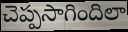
చెప్పసాగిందిలా